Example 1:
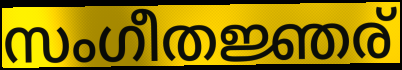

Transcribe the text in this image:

സംഗീതജ്ഞര്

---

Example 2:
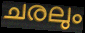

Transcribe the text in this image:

ചരലും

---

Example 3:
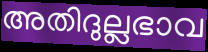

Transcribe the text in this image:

അതിദുല്ലഭാവ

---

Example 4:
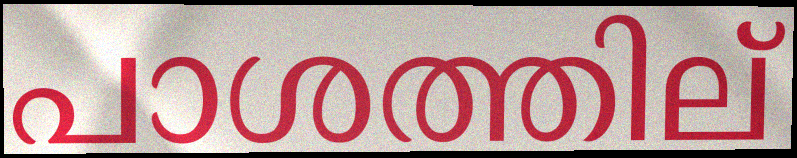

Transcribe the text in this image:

പാശത്തില്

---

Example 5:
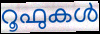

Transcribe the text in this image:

റൂഫുകൾ